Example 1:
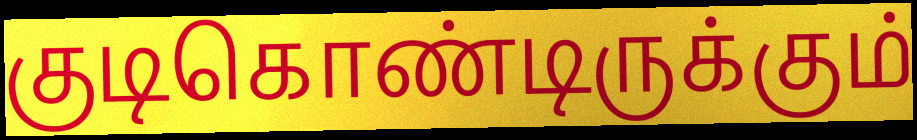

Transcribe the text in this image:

குடிகொண்டிருக்கும்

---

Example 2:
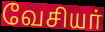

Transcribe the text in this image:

வேசியர்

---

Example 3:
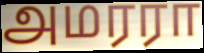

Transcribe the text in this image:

அமரரா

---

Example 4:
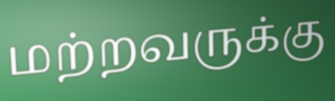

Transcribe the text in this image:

மற்றவருக்கு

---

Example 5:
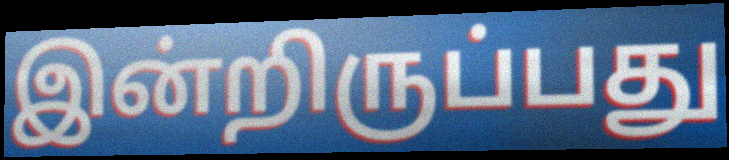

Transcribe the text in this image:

இன்றிருப்பது